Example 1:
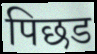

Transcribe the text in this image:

पिछड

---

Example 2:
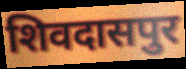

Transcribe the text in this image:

शिवदासपुर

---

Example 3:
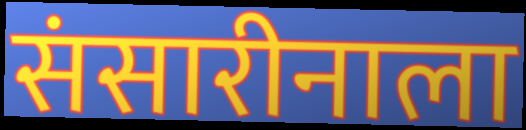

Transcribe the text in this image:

संसारीनाला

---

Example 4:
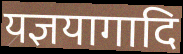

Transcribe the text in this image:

यज्ञयागादि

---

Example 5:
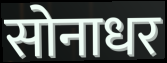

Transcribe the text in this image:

सोनाधर